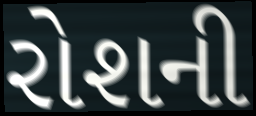
રોશની